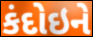
કંદોઇને